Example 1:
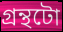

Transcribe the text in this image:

গ্ৰন্থটো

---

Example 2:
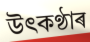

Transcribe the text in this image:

উৎকণ্ঠাৰ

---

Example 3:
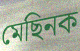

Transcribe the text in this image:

মেছিনক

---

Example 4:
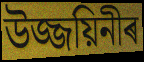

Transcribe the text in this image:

উজ্জয়িনীৰ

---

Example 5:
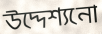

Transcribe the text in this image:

উদ্দেশ্যনো